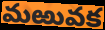
మఱువక